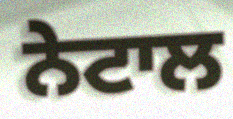
ਨੇਟਾਲ